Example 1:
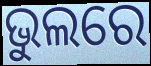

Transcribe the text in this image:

ଭୁଲରେ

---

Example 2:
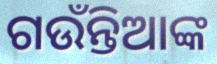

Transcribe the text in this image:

ଗଉଁନ୍ତିଆଙ୍କ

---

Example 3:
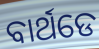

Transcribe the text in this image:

ବାର୍ଥଡେ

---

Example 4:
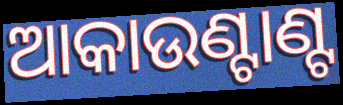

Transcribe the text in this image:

ଆକାଉଣ୍ଟାଣ୍ଟ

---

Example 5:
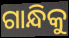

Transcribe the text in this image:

ଗାନ୍ଧିକୁ